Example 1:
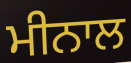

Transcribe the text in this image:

ਮੀਨਾਲ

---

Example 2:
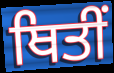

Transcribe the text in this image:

ਥਿਤੀਂ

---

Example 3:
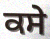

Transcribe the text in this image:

ਕਸੇ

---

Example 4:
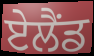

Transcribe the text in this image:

ਏਲੈਂਡ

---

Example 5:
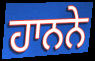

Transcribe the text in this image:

ਹਾਨਨੇ